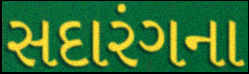
સદારંગના